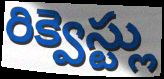
రిక్వెస్ట్లు